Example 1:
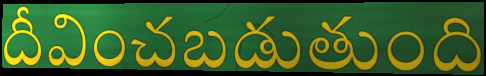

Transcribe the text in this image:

దీవించబడుతుంది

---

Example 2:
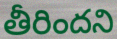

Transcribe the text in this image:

తీరిందని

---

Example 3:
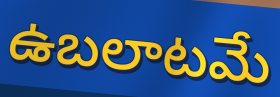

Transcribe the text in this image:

ఉబలాటమే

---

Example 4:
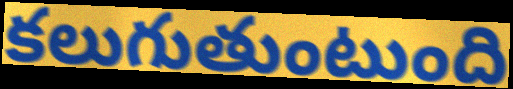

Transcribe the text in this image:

కలుగుతుంటుంది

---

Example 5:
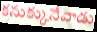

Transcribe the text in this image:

కనుక్కునేవాడు